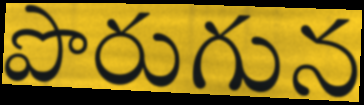
పొరుగున